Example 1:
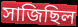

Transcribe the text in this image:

সাজিছিল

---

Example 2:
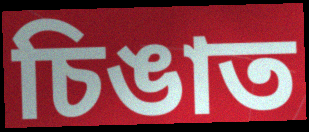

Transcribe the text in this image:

চিঙাত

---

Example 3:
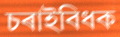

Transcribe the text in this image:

চৰাইবিধক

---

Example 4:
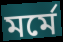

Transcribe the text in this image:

মৰ্মে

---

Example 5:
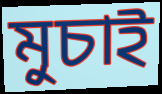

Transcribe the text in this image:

মুচাই